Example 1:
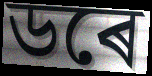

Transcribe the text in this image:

ডৰে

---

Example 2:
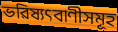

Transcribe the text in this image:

ভৱিষ্যৎবাণীসমূহ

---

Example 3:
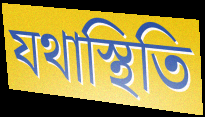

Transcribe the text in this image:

যথাস্থিতি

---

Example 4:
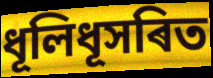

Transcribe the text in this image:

ধূলিধূসৰিত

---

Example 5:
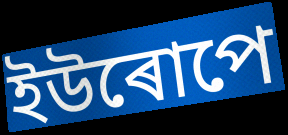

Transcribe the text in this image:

ইউৰোপে